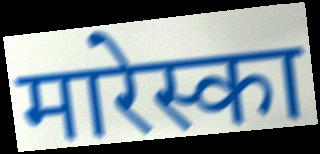
मारेस्का